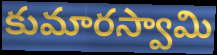
కుమారస్వామి